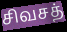
சிவசத்